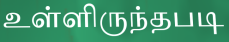
உள்ளிருந்தபடி